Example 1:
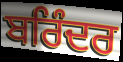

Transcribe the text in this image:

ਬਰਿੰਦਰ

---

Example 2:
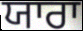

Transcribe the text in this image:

ਯਾਰਾ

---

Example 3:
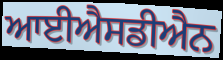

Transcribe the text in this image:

ਆਈਐਸਡੀਐਨ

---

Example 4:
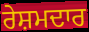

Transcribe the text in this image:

ਰੇਸ਼ਮਦਾਰ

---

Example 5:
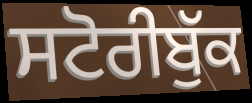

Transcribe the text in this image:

ਸਟੋਰੀਬੁੱਕ